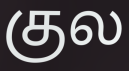
குல